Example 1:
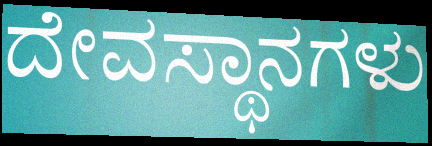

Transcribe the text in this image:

ದೇವಸ್ಥಾನಗಳು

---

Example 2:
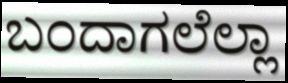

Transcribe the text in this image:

ಬಂದಾಗಲೆಲ್ಲಾ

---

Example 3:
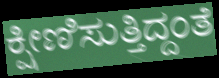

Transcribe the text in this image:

ಕ್ಷೀಣಿಸುತ್ತಿದ್ದಂತೆ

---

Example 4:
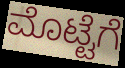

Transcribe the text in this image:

ಮೊಟ್ಟೆಗೆ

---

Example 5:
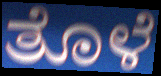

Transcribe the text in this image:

ತೊಳೆ